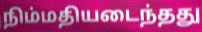
நிம்மதியடைந்தது